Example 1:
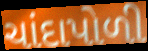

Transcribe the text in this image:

ચાંદાપોળી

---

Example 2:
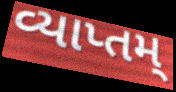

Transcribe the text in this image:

વ્યાપ્તમ્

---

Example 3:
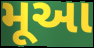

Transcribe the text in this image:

મૂઆ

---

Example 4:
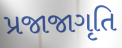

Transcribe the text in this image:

પ્રજાજાગૃતિ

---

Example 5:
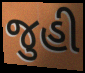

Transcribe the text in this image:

જુહી